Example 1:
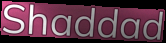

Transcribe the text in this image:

Shaddad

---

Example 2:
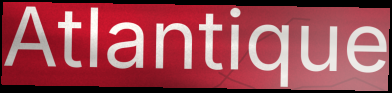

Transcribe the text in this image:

Atlantique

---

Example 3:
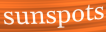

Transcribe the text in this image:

sunspots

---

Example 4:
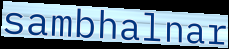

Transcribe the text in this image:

sambhalnar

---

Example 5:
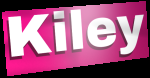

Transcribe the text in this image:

Kiley